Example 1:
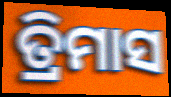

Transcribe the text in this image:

ତ୍ରିମାସ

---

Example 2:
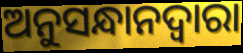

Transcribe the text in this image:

ଅନୁସନ୍ଧାନଦ୍ୱାରା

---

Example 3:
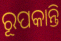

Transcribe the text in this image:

ରୂପକାନ୍ତି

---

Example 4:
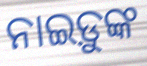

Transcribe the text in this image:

ନାଇଡ଼ୁଙ୍କ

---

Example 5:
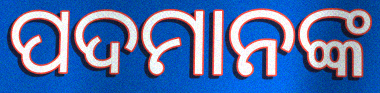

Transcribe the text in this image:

ପଦମାନଙ୍କ